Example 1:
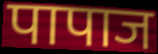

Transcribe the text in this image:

पापाज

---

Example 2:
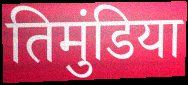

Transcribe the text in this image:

तिमुंडिया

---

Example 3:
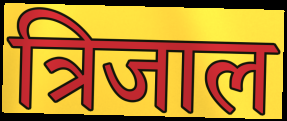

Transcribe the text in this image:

त्रिजाल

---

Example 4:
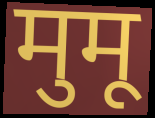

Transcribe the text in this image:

मुमू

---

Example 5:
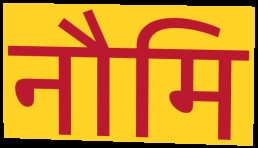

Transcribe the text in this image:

नौमि